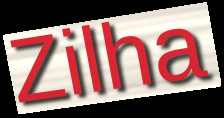
Zilha